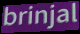
brinjal